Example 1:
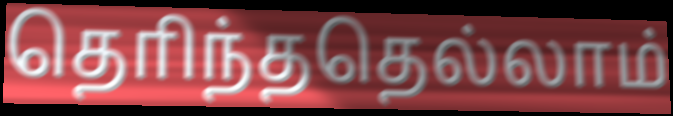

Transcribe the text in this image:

தெரிந்ததெல்லாம்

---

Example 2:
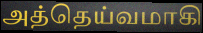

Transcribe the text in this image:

அத்தெய்வமாகி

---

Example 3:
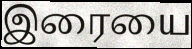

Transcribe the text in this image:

இரையை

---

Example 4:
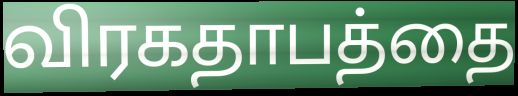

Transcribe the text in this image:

விரகதாபத்தை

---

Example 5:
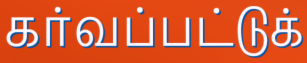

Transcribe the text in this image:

கர்வப்பட்டுக்